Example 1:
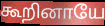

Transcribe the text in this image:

கூறினாயே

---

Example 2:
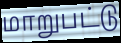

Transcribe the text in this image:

மாறுபட்டு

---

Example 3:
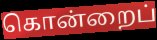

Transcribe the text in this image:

கொன்றைப்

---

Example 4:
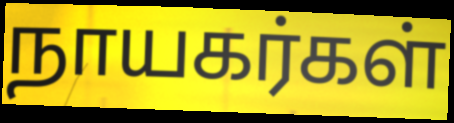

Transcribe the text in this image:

நாயகர்கள்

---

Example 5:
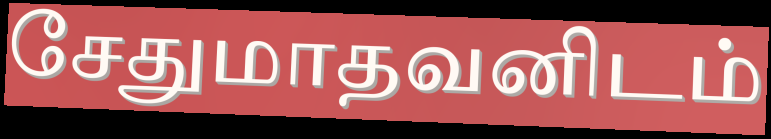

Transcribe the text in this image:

சேதுமாதவனிடம்